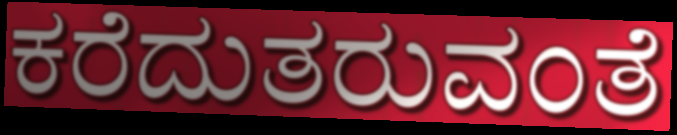
ಕರೆದುತರುವಂತೆ